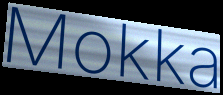
Mokka